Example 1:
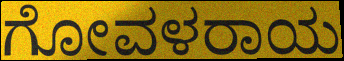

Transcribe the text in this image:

ಗೋವಳರಾಯ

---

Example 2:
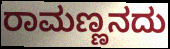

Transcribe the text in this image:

ರಾಮಣ್ಣನದು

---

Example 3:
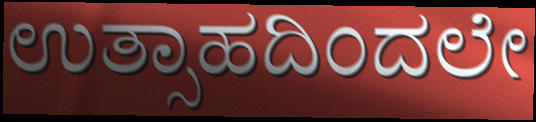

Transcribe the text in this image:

ಉತ್ಸಾಹದಿಂದಲೇ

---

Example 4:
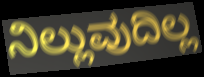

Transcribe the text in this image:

ನಿಲ್ಲುವುದಿಲ್ಲ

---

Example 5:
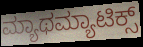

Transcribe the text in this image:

ಮ್ಯಾಥಮ್ಯಾಟಿಕ್ಸ್